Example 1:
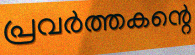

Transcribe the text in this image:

പ്രവർത്തകന്റെ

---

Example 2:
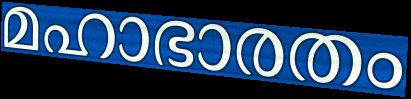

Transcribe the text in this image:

മഹാഭാരതം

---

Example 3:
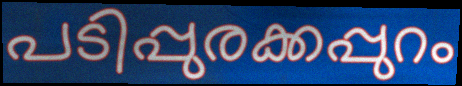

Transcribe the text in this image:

പടിപ്പുരക്കപ്പുറം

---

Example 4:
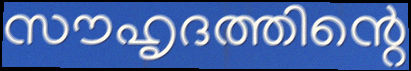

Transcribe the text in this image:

സൗഹൃദത്തിന്റെ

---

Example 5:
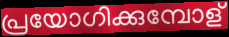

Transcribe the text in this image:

പ്രയോഗിക്കുമ്പോള്